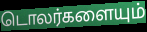
டொலர்களையும்